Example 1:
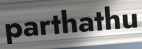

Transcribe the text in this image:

parthathu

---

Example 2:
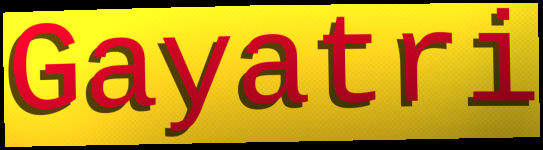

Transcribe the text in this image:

Gayatri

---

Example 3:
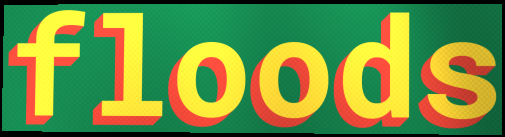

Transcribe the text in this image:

floods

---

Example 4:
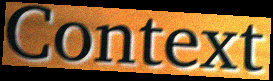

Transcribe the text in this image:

Context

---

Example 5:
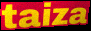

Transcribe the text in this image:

taiza